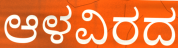
ಆಳವಿರದ